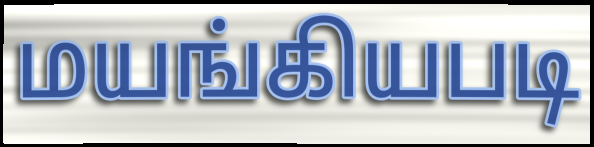
மயங்கியபடி